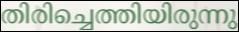
തിരിച്ചെത്തിയിരുന്നു